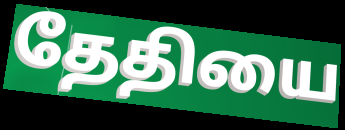
தேதியை